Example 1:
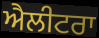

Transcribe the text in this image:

ਐਲੀਟਰਾ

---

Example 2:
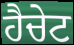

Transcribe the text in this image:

ਹੈਚੇਟ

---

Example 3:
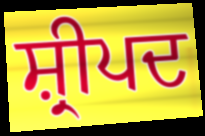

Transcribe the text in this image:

ਸ਼੍ਰੀਪਦ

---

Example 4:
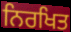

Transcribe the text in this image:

ਨਿਰਖਿਤ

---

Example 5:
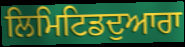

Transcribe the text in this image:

ਲਿਮਿਟਿਡਦੁਆਰਾ